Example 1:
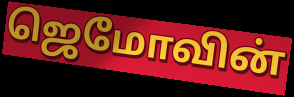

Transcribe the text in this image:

ஜெமோவின்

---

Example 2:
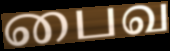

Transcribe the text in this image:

பைவ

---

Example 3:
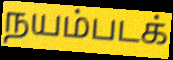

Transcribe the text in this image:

நயம்படக்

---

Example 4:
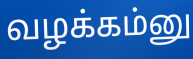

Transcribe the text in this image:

வழக்கம்னு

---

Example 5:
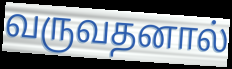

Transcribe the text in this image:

வருவதனால்